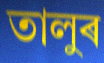
তালুৰ